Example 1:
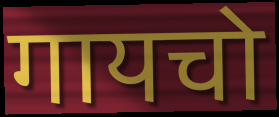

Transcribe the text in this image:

गायचो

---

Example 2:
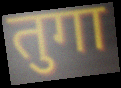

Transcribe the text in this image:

तुगा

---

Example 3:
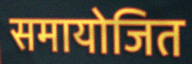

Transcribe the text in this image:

समायोजित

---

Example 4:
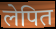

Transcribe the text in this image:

लेपित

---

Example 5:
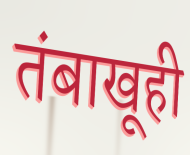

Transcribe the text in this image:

तंबाखूही